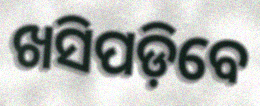
ଖସିପଡ଼ିବେ